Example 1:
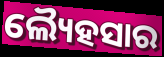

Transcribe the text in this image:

ଲ୍ୟୈହସାର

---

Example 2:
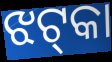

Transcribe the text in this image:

ଝଟ୍‍କା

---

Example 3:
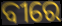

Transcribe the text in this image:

ବୀରେ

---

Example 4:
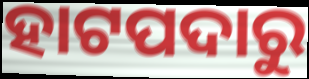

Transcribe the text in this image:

ହାଟପଦାରୁ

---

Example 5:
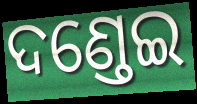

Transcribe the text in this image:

ଦଣ୍ଡେଇ